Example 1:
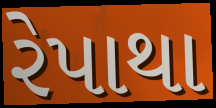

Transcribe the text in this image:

રેપાથા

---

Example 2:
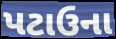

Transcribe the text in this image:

પટાઉના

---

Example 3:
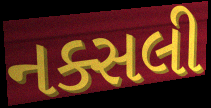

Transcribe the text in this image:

નક્સલી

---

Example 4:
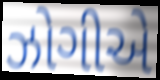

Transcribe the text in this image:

ઝોગીએ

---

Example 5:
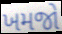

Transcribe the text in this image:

ખમજો